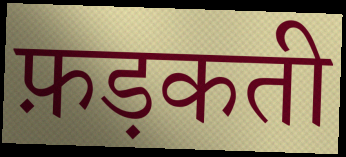
फ़ड़कती